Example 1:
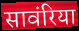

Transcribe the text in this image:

सावंरिया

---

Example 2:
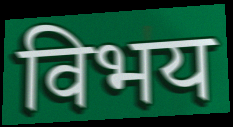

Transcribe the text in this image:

विभय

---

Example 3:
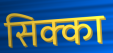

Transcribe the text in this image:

सिक्‍का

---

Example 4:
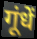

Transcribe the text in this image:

गूंधें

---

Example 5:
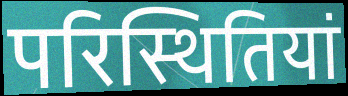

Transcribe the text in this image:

परिस्थितियां